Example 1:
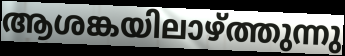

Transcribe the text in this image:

ആശങ്കയിലാഴ്ത്തുന്നു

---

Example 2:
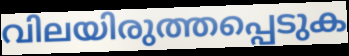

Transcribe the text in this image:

വിലയിരുത്തപ്പെടുക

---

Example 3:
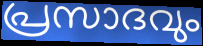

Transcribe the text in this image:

പ്രസാദവും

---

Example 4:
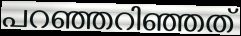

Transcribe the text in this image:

പറഞ്ഞറിഞ്ഞത്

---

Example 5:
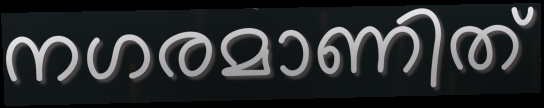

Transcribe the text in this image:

നഗരമാണിത്